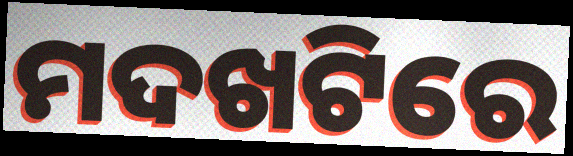
ମଦଖଟିରେ